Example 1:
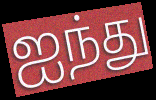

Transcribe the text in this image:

ஐந்து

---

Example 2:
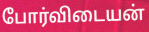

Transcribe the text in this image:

போர்விடையன்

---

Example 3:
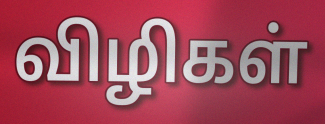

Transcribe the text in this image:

விழிகள்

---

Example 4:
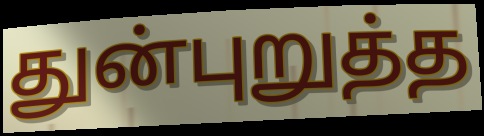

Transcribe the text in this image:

துன்புறுத்த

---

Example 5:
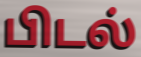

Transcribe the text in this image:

பிடல்